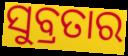
ସୁବ୍ରତାର